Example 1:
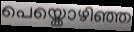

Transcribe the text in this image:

പെയ്തൊഴിഞ്ഞ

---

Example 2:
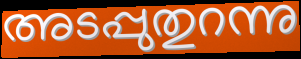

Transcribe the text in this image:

അടപ്പുതുറന്നു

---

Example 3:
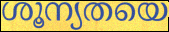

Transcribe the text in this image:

ശൂന്യതയെ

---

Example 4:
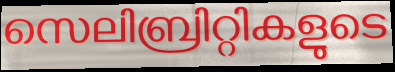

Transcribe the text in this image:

സെലിബ്രിറ്റികളുടെ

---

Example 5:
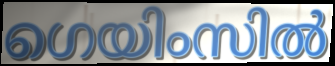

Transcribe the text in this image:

ഗെയിംസിൽ